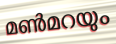
മൺമറയും